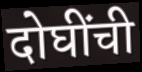
दोघींची